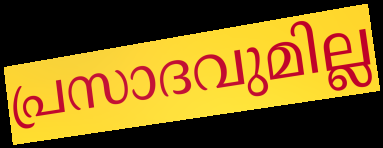
പ്രസാദവുമില്ല